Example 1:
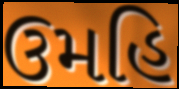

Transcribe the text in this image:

ઉમહિ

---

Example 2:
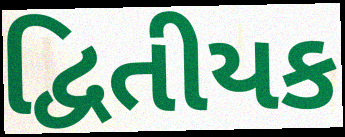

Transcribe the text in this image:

દ્વિતીયક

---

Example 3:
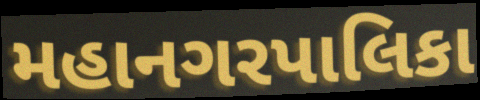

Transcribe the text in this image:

મહાનગરપાલિકા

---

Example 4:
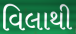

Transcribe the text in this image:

વિલાથી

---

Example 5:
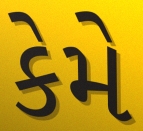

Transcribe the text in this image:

કેમે